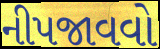
નીપજાવવો